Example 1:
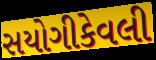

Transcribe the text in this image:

સયોગીકેવલી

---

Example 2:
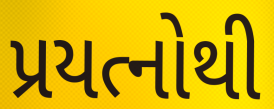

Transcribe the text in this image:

પ્રયત્નોથી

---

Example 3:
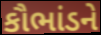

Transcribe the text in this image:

કૌભાંડને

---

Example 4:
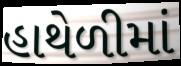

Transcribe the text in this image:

હાથેળીમાં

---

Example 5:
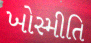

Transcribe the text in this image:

ખોસ્મીતિ